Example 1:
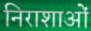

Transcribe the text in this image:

निराशाओं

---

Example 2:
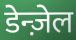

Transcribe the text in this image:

डेन्ज़ेल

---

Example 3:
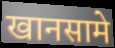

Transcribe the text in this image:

खानसामे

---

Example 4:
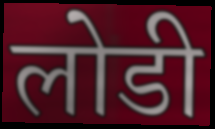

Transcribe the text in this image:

लोडी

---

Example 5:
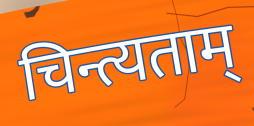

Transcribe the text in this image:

चिन्त्यताम्